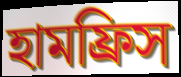
হামফ্রিস